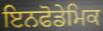
ਇਨਫੋਡੇਮਿਕ